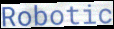
Robotic